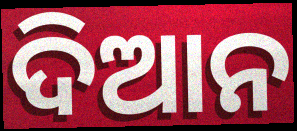
ଦିଆନ